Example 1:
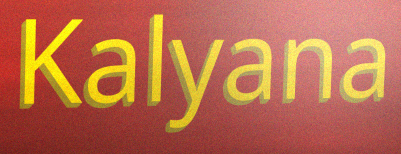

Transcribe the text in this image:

Kalyana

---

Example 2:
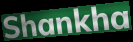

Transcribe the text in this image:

Shankha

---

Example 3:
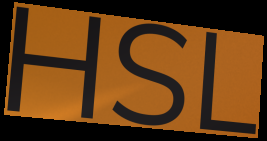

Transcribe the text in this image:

HSL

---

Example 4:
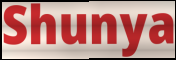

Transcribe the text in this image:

Shunya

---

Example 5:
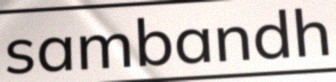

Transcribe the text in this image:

sambandh